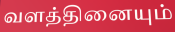
வளத்தினையும்